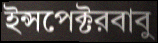
ইন্সপেক্টরবাবু